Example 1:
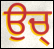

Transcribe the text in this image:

ਉਚ੍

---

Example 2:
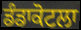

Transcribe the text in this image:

ਡੰਡਾਕੋਟਲਾ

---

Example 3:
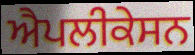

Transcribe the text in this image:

ਐਪਲੀਕੇਸਨ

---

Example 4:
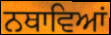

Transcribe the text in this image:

ਨਥਾਵਿਆਂ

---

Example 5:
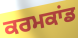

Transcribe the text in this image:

ਕਰਮਕਾਂਡ